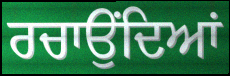
ਰਚਾਉਂਦਿਆਂ